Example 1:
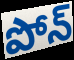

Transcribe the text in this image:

పోన్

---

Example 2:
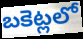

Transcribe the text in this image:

బకెట్లలో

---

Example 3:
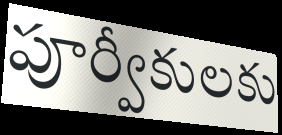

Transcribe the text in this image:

పూర్వీకులకు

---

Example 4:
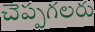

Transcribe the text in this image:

చెప్పగలరు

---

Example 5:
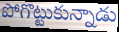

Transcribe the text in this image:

పోగొట్టుకున్నాడు